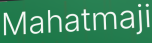
Mahatmaji